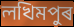
লখিমপুৰ